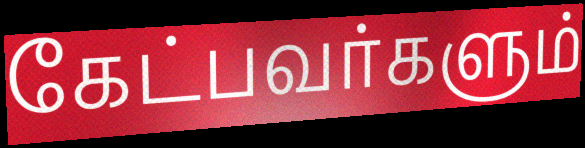
கேட்பவர்களும்